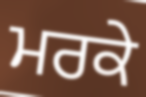
ਮਰਕੇ